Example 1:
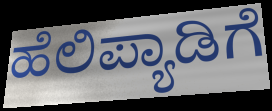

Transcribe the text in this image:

ಹೆಲಿಪ್ಯಾಡಿಗೆ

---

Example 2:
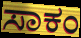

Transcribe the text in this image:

ಸಾಕಂ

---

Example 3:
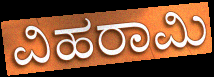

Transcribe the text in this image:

ವಿಹರಾಮಿ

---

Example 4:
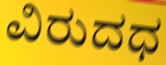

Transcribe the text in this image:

ವಿರುದಧ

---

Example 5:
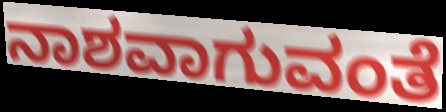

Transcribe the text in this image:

ನಾಶವಾಗುವಂತೆ